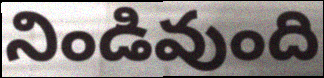
నిండివుంది